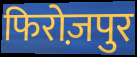
फिरोज़पुर